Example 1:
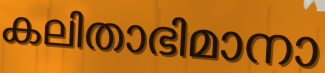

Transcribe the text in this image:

കലിതാഭിമാനാ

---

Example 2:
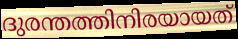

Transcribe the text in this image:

ദുരന്തത്തിനിരയായത്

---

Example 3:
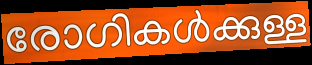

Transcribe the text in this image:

രോഗികൾക്കുള്ള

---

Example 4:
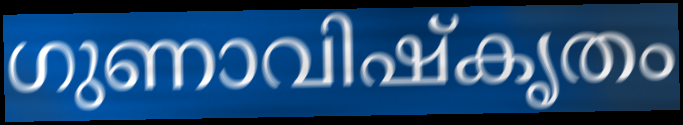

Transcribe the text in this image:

ഗുണാവിഷ്കൃതം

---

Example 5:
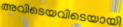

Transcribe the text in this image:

അവിടെയവിടെയായി